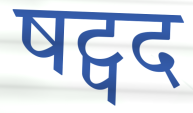
षट्पद